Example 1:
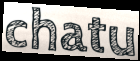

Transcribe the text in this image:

chatu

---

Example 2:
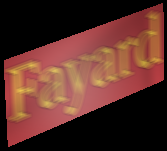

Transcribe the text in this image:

Fayard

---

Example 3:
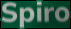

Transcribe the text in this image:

Spiro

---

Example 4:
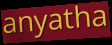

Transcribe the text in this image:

anyatha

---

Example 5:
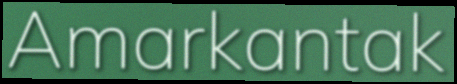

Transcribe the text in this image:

Amarkantak